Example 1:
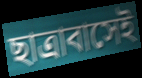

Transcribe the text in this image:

ছাত্রাবাসেই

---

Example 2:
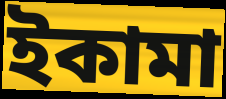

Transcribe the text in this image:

ইকামা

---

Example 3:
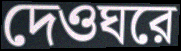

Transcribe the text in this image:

দেওঘরে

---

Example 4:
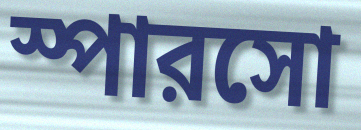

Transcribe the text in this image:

স্পারসো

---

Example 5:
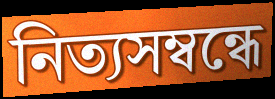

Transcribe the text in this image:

নিত্যসম্বন্ধে